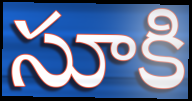
సూకి